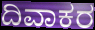
ದಿವಾಕರ